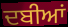
ਦਬੀਆਂ